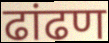
ढांढण